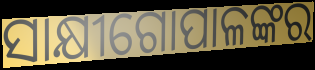
ସାକ୍ଷୀଗୋପାଳଙ୍କର